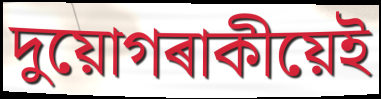
দুয়োগৰাকীয়েই